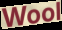
Wool